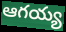
ఆగయ్య